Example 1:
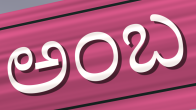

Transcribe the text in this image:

ಅಂಬ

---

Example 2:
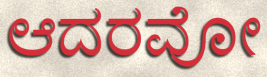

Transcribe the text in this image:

ಆದರವೋ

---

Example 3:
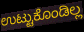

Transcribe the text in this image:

ಉಟ್ಟುಕೊಂಡಿಲ್ಲ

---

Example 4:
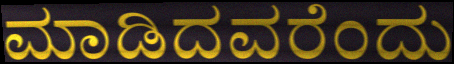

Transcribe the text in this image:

ಮಾಡಿದವರೆಂದು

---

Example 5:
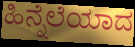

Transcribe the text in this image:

ಹಿನ್ನೆಲೆಯಾದ